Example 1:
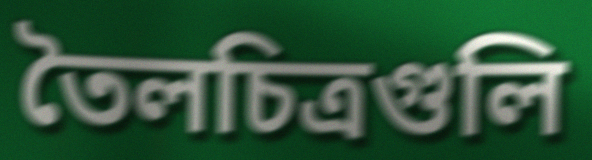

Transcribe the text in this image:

তৈলচিত্রগুলি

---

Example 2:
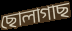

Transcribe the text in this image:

ছোলাগাছ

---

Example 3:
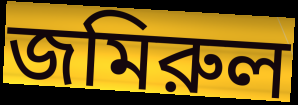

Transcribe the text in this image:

জমিরুল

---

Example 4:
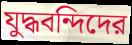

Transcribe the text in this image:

যুদ্ধবন্দিদের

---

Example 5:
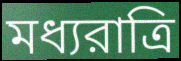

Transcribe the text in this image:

মধ্যরাত্রি